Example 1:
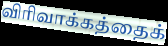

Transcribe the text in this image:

விரிவாக்கத்தைக்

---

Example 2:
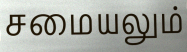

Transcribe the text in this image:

சமையலும்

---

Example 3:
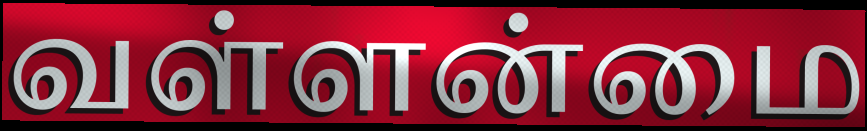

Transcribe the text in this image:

வள்ளன்மை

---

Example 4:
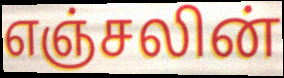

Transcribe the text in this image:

எஞ்சலின்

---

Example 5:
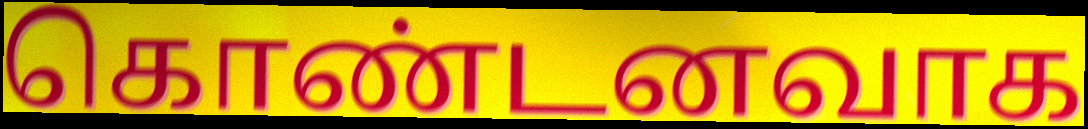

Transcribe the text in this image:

கொண்டனவாக